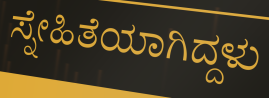
ಸ್ನೇಹಿತೆಯಾಗಿದ್ದಳು